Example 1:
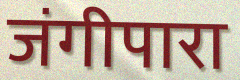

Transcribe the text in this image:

जंगीपारा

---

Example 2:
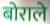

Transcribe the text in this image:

बोराले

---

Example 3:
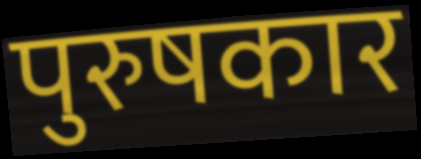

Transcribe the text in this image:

पुरुषकार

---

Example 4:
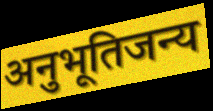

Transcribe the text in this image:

अनुभूतिजन्य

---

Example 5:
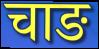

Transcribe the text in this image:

चाङ